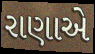
રાણાએ